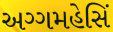
અગ્ગમહેસિં